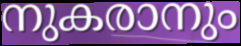
നുകരാനും